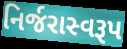
નિર્જરાસ્વરૂપ